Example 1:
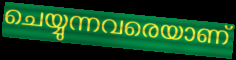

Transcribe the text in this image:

ചെയ്യുന്നവരെയാണ്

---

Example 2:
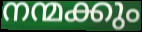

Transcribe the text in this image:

നന്മക്കും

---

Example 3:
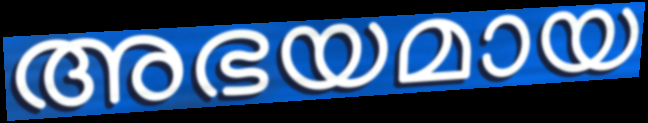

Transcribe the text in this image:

അഭയമായ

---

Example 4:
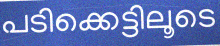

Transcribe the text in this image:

പടിക്കെട്ടിലൂടെ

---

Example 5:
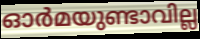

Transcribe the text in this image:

ഓർമയുണ്ടാവില്ല